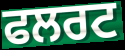
ਫਲਰਟ